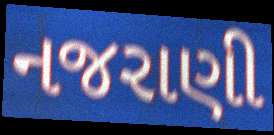
નજરાણી